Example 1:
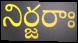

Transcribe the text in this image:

నిర్జరాః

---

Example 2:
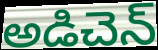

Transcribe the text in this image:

అడిచెన్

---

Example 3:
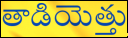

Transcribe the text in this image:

తాడియెత్తు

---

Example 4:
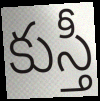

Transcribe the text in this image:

కుస్తీ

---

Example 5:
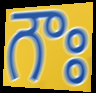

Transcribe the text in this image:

గౌః